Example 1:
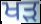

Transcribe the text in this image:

ਖੜ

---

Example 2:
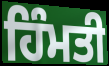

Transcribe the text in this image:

ਹਿੰਮਤੀ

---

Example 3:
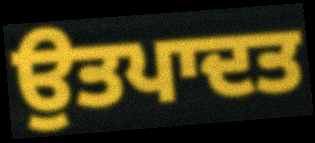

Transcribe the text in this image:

ਉਤਪਾਦਤ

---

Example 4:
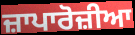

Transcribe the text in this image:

ਜ਼ਾਪਾਰੋਜ਼ੀਆ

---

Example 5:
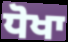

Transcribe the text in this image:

ਧੋਖਾ